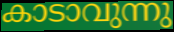
കാടാവുന്നു